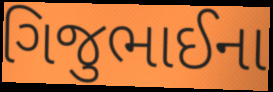
ગિજુભાઈના